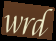
wrd